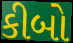
કીબો